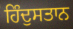
ਹਿੰਦੁਸਤਾਨ